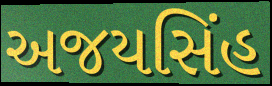
અજયસિંહ